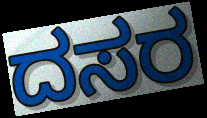
ದಸರ